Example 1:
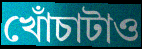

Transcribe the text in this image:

খোঁচাটাও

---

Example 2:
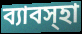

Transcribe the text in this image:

ব্যাবস্হা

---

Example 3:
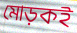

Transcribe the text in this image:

মোড়কই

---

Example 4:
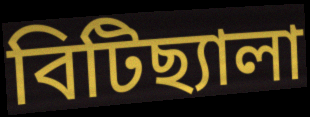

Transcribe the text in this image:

বিটিছ্যালা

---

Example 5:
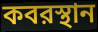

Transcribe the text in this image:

কবরস্থান